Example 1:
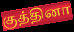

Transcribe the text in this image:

குத்தினா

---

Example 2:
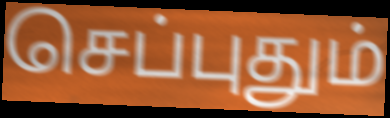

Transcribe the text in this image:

செப்புதும்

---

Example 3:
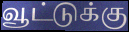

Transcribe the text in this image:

வூட்டுக்கு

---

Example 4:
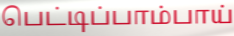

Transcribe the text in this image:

பெட்டிப்பாம்பாய்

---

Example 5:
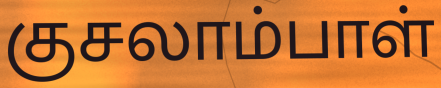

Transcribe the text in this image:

குசலாம்பாள்